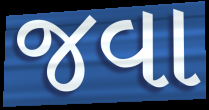
જવા